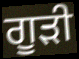
ਗੂੜੀ